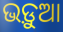
ଭଡ଼ୁଆ